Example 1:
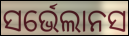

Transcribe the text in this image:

ସର୍ଭେଲାନସ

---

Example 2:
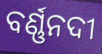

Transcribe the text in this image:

ବର୍ଣ୍ଣନଦୀ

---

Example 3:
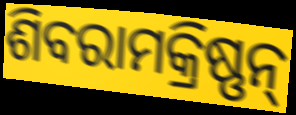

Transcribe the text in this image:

ଶିବରାମକ୍ରିଷ୍ଣନ୍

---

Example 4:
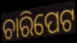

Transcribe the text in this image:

ଚାରିପେଟ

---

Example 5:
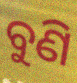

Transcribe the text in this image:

ବୁଣି